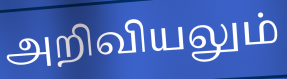
அறிவியலும்